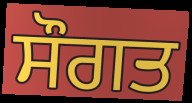
ਸੌਗਤ